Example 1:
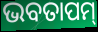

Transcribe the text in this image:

ଭବତାପମ୍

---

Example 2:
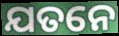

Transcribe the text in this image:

ଯତନେ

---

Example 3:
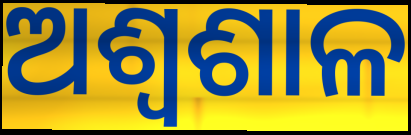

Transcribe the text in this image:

ଅଶ୍ୱଶାଳ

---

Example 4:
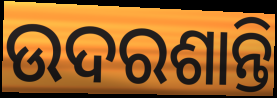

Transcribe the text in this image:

ଉଦରଶାନ୍ତି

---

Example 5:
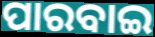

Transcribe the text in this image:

ପାରବାଇ